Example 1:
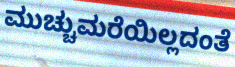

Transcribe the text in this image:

ಮುಚ್ಚುಮರೆಯಿಲ್ಲದಂತೆ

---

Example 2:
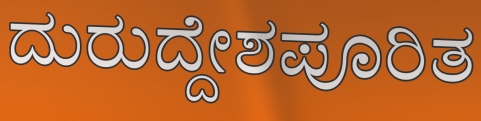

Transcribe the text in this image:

ದುರುದ್ದೇಶಪೂರಿತ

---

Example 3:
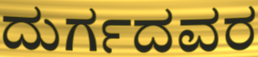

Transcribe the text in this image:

ದುರ್ಗದವರ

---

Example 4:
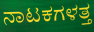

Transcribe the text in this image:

ನಾಟಕಗಳತ್ತ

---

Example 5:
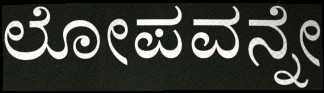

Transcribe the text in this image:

ಲೋಪವನ್ನೇ